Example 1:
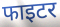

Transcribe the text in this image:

फाइटर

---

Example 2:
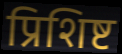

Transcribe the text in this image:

प्रिशिष्ट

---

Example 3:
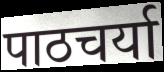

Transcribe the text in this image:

पाठचर्या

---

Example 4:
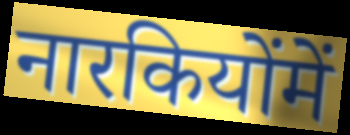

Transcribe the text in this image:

नारकियोंमें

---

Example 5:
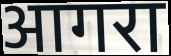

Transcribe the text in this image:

आगरा